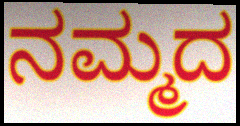
ನಮ್ಮದ